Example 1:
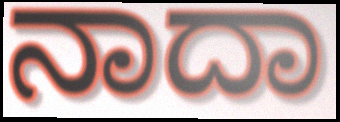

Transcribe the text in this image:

ನಾದಾ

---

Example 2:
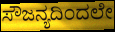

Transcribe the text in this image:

ಸೌಜನ್ಯದಿಂದಲೇ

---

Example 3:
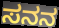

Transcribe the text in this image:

ಸನನ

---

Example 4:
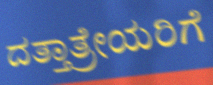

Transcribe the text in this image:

ದತ್ತಾತ್ರೇಯರಿಗೆ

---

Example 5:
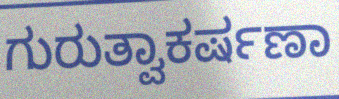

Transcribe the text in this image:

ಗುರುತ್ವಾಕರ್ಷಣಾ